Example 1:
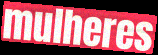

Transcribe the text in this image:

mulheres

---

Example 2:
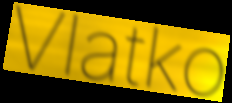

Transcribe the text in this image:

Vlatko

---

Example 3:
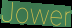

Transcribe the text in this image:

Jower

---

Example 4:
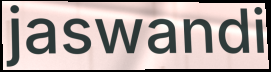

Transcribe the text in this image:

jaswandi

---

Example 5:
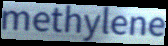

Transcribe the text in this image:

methylene